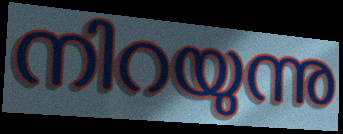
നിറയുന്നു